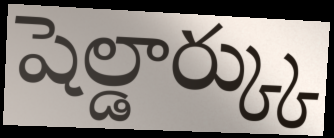
షెల్డార్క్కు